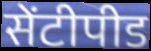
सेंटीपीड